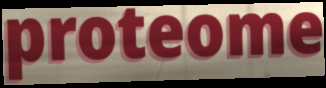
proteome